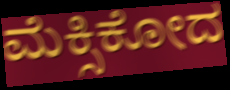
ಮೆಕ್ಸಿಕೋದ